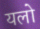
यलो